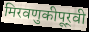
मिरवणुकीपूर्वी